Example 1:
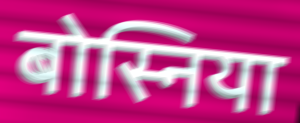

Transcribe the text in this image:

बोस्निया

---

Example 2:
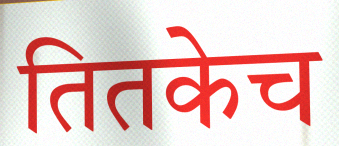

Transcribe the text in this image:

तितकेच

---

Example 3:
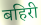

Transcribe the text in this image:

बहिरी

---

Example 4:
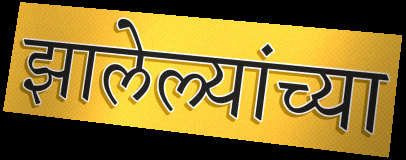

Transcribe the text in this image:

झालेल्यांच्या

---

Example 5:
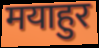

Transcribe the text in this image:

मयाहुर